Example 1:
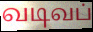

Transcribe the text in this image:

வடிவப்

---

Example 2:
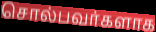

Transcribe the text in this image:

சொல்பவர்களாக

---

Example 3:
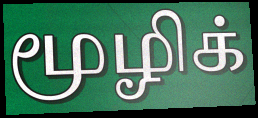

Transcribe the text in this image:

மூழிக்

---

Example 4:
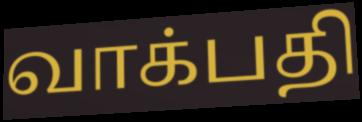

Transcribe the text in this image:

வாக்பதி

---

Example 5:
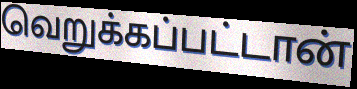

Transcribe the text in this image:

வெறுக்கப்பட்டான்